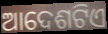
ଆଦେଶଟିଏ